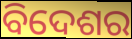
ବିଦେଶର